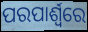
ପରପାର୍ଶ୍ୱରେ